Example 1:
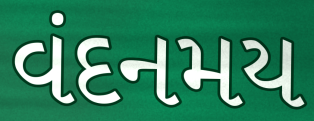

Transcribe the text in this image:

વંદનમય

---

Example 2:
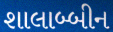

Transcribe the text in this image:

શાલાબ્બીન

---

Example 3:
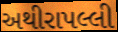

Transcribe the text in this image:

અથીરાપલ્લી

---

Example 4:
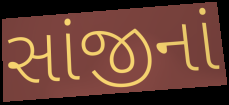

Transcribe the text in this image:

સાંજીનાં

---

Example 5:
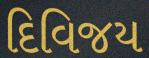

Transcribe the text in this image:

દિવિજય